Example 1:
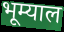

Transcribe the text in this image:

भूम्याल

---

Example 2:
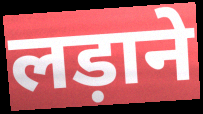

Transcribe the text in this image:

लड़ाने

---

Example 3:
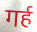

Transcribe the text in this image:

गर्ह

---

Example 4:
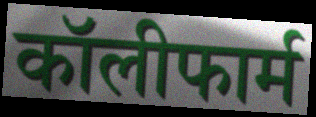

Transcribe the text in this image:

कॉलीफार्म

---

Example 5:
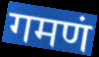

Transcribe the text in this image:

गमणं